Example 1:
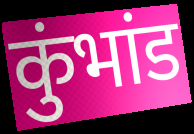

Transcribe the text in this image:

कुंभांड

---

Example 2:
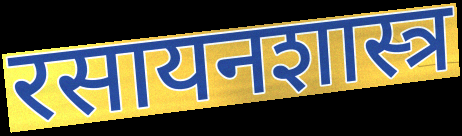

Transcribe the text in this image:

रसायनशास्त्र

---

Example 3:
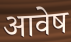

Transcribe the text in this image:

आवेष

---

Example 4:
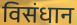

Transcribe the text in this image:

विसंधान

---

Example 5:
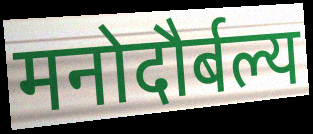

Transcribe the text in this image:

मनोदौर्बल्य